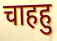
चाहहु